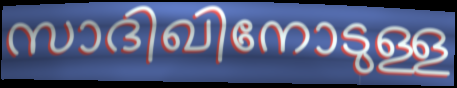
സാദിഖിനോടുള്ള